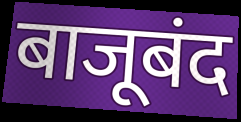
बाजूबंद